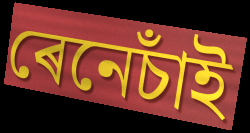
ৰেনেচাঁই